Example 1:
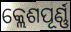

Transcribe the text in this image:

କ୍ଲେଶପୂର୍ଣ୍ଣ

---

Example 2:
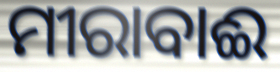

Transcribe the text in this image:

ମୀରାବାଈ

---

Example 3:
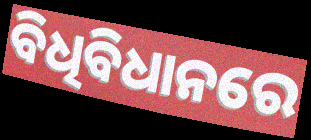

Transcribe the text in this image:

ବିଧିବିଧାନରେ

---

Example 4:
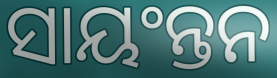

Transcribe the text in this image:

ସାୟଂନ୍ତନ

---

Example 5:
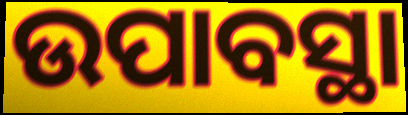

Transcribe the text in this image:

ଉପାବସ୍ଥା